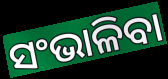
ସଂଭାଳିବା